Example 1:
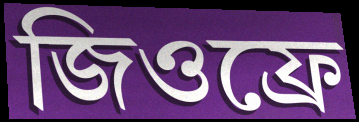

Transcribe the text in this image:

জিওফ্ৰে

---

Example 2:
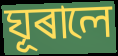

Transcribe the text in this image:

ঘূৰালে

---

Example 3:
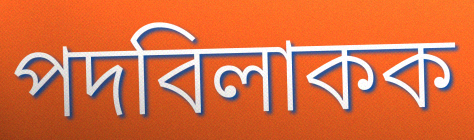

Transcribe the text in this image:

পদবিলাকক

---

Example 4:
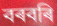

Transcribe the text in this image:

বৰবৰি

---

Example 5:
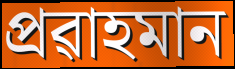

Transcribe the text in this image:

প্ৰৱাহমান